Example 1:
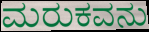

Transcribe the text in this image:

ಮರುಕವನು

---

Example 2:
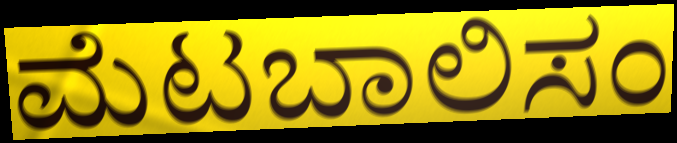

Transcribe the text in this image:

ಮೆಟಬಾಲಿಸಂ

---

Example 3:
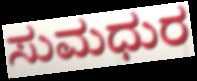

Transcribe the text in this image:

ಸುಮಧುರ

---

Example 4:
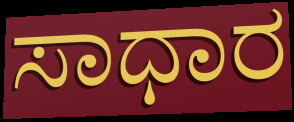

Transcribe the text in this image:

ಸಾಧಾರ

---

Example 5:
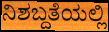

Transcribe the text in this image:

ನಿಶಬ್ದತೆಯಲ್ಲಿ